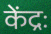
केंद्रः